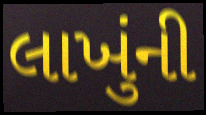
લાખુંની